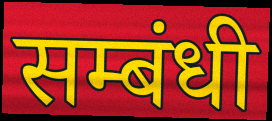
सम्बंधी